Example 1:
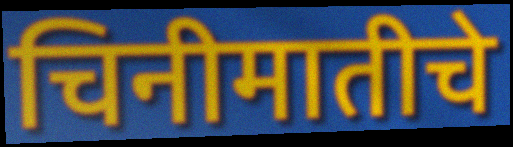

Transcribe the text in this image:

चिनीमातीचे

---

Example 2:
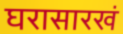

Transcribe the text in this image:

घरासारखं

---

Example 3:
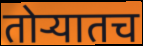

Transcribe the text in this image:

तोऱ्यातच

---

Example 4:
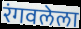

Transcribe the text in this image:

रंगवलेला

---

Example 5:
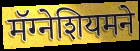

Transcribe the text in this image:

मॅग्नेशियमने